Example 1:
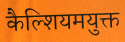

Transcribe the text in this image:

कैल्शियमयुक्त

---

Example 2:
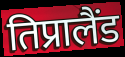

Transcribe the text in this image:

तिप्रालैंड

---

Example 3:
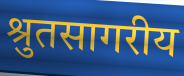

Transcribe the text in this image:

श्रुतसागरीय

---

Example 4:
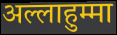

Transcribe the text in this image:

अल्लाहुम्मा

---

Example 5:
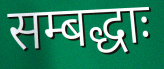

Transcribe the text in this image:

सम्बद्धाः